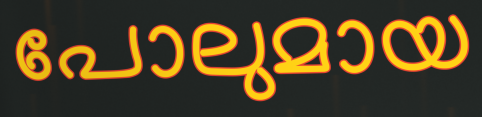
പോലുമായ